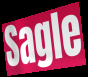
Sagle